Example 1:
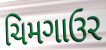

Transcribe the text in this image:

ચિમગાઉર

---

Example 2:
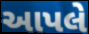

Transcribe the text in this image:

આપલે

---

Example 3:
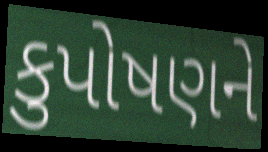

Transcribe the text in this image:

કુપોષણને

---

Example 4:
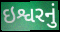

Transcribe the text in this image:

ઇશ્વરનું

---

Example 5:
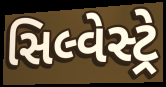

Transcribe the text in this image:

સિલ્વેસ્ટ્રે